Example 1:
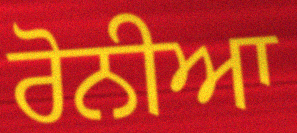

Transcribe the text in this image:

ਰੋਨੀਆ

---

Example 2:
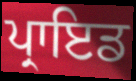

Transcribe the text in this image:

ਪ੍ਰਾਇਡ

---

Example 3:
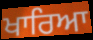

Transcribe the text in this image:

ਖਾਰਿਆ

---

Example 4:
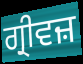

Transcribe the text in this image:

ਗ੍ਰੀਵਜ਼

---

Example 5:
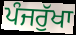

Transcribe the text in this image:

ਪੰਜਰੁੱਖਾ